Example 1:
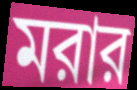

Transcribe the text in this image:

মরার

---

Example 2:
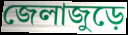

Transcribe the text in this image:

জেলাজুড়ে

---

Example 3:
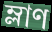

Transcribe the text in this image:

ম্লাণ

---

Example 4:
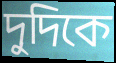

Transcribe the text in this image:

দুদিকে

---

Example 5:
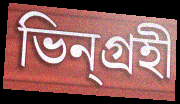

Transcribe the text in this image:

ভিন্গ্রহী